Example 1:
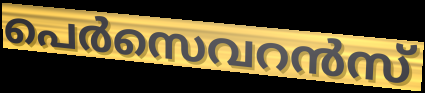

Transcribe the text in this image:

പെർസെവറൻസ്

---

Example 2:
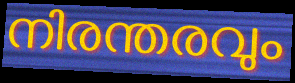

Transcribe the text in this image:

നിരന്തരവും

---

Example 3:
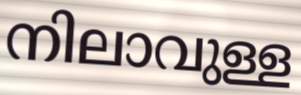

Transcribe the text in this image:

നിലാവുള്ള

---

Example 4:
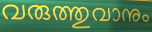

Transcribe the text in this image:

വരുത്തുവാനും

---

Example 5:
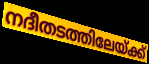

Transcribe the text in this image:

നദീതടത്തിലേയ്ക്ക്